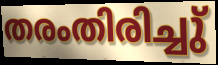
തരംതിരിച്ചു്